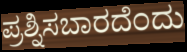
ಪ್ರಶ್ನಿಸಬಾರದೆಂದು